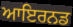
ਆਇਰਨਡ